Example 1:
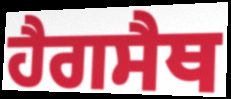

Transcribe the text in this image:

ਹੈਗਸੈਥ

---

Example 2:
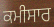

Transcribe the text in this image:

ਕਮੀਸਾਰ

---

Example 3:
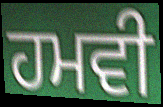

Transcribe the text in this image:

ਹਮਵੀ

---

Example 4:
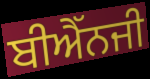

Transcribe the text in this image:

ਬੀਐੱਨਜੀ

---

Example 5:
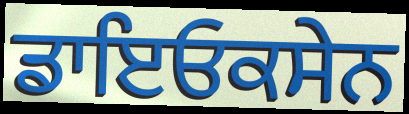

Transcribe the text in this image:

ਡਾਇਓਕਸੇਨ